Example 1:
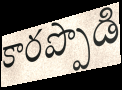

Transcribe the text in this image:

కారప్పొడి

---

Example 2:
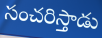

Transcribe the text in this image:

సంచరిస్తాడు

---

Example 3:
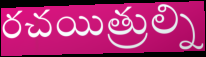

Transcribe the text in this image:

రచయిత్రుల్ని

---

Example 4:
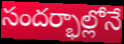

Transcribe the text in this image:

సందర్భాల్లోనే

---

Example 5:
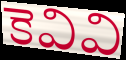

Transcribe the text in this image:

కెవివి